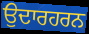
ਉਦਾਰਹਰਨ